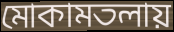
মোকামতলায়